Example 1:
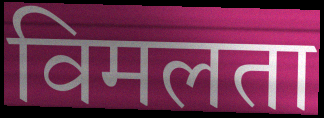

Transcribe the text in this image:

विमलता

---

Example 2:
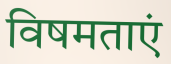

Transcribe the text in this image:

विषमताएं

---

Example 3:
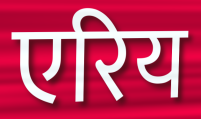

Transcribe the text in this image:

एरिय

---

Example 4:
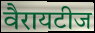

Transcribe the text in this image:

वैरायटीज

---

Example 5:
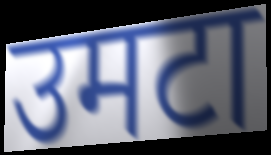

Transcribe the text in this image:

उमटा